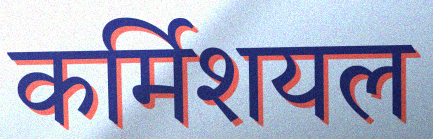
कर्मिशयल